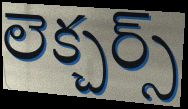
లెక్చర్స్